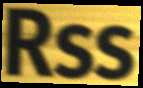
Rss